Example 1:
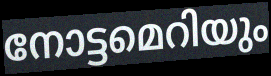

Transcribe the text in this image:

നോട്ടമെറിയും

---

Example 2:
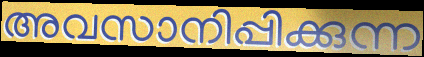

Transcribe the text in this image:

അവസാനിപ്പിക്കുന്ന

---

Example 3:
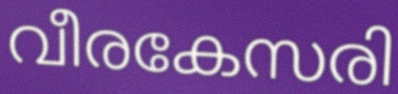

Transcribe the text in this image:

വീരകേസരി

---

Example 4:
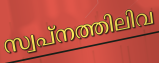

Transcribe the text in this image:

സ്വപ്നത്തിലിവ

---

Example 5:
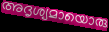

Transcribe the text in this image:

അദൃശ്യമായൊരു